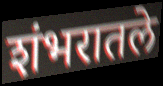
शंभरातले